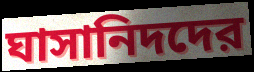
ঘাসানিদদের